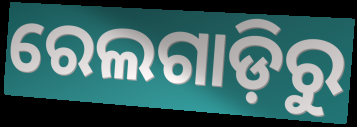
ରେଲଗାଡ଼ିରୁ